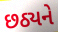
છઠ્યને